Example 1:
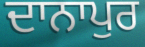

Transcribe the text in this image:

ਦਾਨਾਪੁਰ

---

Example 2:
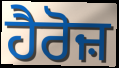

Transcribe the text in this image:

ਹੈਰੋਜ਼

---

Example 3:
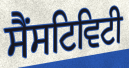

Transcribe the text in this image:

ਸੈਂਸਟਿਵਿਟੀ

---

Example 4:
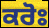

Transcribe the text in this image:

ਕਰੋਃ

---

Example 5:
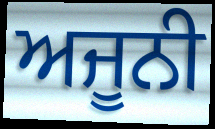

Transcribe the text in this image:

ਅਜੂਨੀ